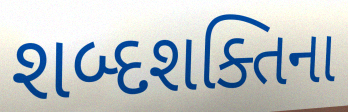
શબ્દશક્તિના